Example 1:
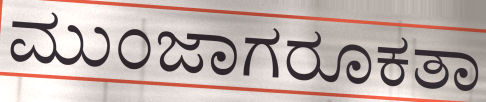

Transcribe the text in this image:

ಮುಂಜಾಗರೂಕತಾ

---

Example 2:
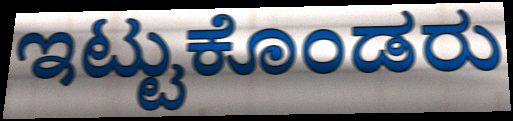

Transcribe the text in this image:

ಇಟ್ಟುಕೊಂಡರು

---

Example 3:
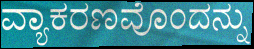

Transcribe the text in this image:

ವ್ಯಾಕರಣವೊಂದನ್ನು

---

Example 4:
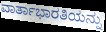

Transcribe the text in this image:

ವಾರ್ತಾಭಾರತಿಯನ್ನು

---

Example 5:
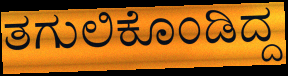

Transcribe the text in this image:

ತಗುಲಿಕೊಂಡಿದ್ದ